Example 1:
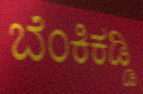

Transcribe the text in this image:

ಬೆಂಕಿಕಡ್ಡಿ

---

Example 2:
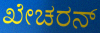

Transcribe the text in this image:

ಖೇಚರನ್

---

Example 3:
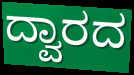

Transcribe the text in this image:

ದ್ವಾರದ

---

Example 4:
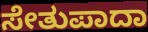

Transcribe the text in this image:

ಸೇತುಪಾದಾ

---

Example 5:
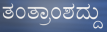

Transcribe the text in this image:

ತಂತ್ರಾಂಶದ್ದು